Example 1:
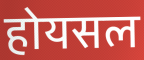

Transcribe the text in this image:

होयसल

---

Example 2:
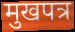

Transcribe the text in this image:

मुखपत्र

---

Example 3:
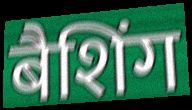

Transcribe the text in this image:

बैशिंग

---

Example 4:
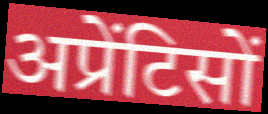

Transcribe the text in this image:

अप्रेंटिसों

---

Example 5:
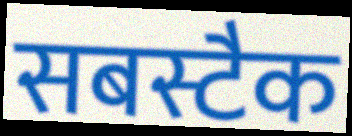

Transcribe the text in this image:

सबस्टैक